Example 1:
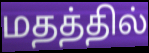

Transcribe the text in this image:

மதத்தில்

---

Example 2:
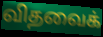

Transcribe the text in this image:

விதவைக்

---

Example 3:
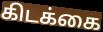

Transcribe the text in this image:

கிடக்கை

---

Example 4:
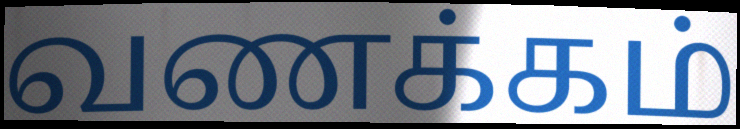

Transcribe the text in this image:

வணக்கம்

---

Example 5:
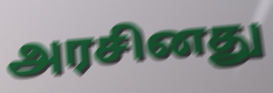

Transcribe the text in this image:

அரசினது